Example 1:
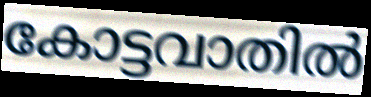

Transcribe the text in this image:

കോട്ടവാതിൽ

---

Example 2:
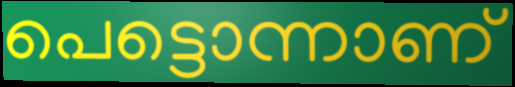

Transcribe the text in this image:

പെട്ടൊന്നാണ്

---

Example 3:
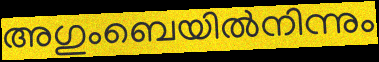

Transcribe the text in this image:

അഗുംബെയിൽനിന്നും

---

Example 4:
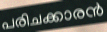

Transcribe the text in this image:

പരിചക്കാരൻ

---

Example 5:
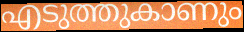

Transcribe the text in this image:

എടുത്തുകാണും